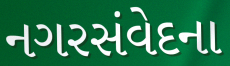
નગરસંવેદના